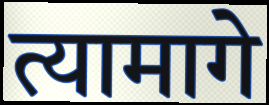
त्यामागे